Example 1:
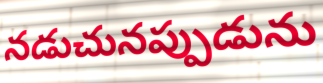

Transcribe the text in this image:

నడుచునప్పుడును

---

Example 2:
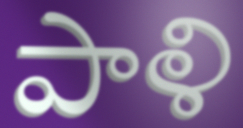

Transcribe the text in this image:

పాళి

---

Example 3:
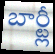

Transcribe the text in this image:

బార్ట్లీ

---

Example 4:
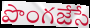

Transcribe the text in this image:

పొంగజేసే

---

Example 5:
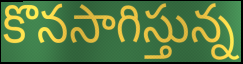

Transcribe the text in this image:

కొనసాగిస్తున్న